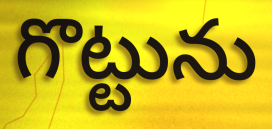
గొట్టును